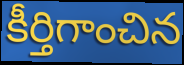
కీర్తిగాంచిన